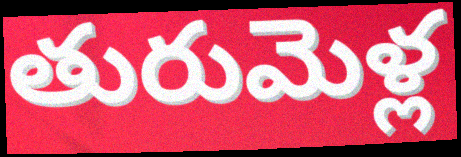
తురుమెళ్ల